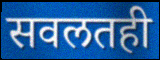
सवलतही